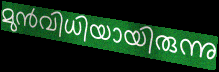
മുൻവിധിയായിരുന്നു